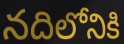
నదిలోనికి